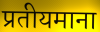
प्रतीयमाना